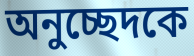
অনুচ্ছেদকে